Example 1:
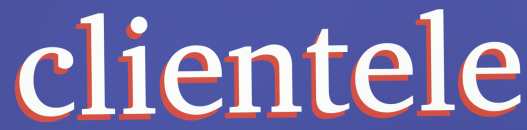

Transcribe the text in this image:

clientele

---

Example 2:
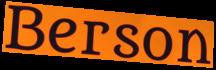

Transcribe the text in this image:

Berson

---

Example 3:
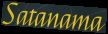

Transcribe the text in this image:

Satanama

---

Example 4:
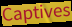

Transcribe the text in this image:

Captives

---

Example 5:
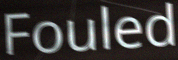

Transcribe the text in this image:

Fouled